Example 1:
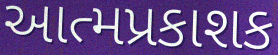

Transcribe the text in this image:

આત્મપ્રકાશક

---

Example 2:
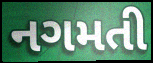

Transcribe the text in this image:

નગમતી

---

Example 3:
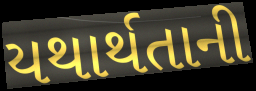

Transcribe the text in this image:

યથાર્થતાની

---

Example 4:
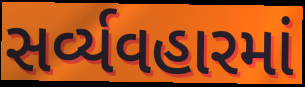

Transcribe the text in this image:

સર્વ્યવહારમાં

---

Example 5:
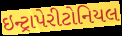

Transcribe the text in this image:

ઇન્ટ્રાપેરીટોનિયલ